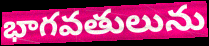
భాగవతులును